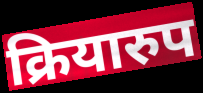
क्रियारुप